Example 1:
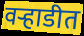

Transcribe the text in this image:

वऱ्हाडीत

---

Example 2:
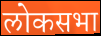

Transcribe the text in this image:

लोकसभा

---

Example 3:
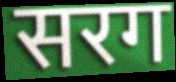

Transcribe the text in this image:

सरग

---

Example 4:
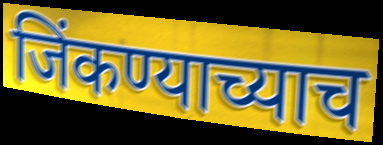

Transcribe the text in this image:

जिंकण्याच्याच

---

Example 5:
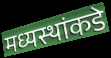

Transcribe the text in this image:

मध्यस्थांकडे